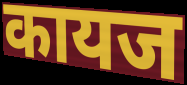
कायज